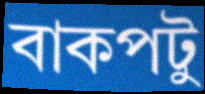
বাকপটু